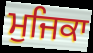
ਮੁਜਿਕਾ